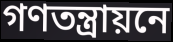
গণতন্ত্রায়নে